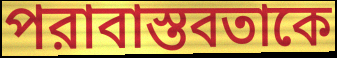
পরাবাস্তবতাকে